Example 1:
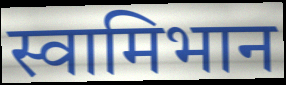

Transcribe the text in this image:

स्वामिभान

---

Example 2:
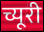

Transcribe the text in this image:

च्यूरी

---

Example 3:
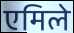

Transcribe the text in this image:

एमिले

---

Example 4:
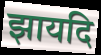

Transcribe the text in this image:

झायदि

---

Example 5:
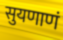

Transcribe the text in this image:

सुयणाणं